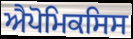
ਐਪੋਮਿਕਸਿਸ